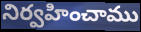
నిర్వహించాము